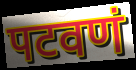
पटवणं